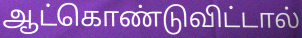
ஆட்கொண்டுவிட்டால்